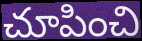
చూపించి